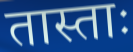
तास्ताः